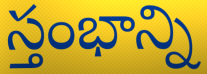
స్తంభాన్ని